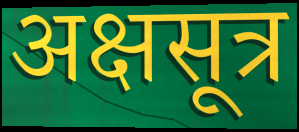
अक्षसूत्र